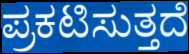
ಪ್ರಕಟಿಸುತ್ತದೆ